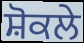
ਸ਼ੋਕਲੇ